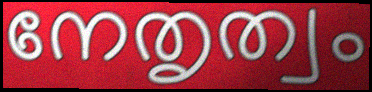
നേതൃത്വം